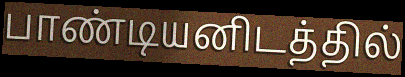
பாண்டியனிடத்தில்